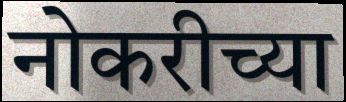
नोकरीच्या